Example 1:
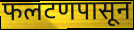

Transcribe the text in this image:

फलटणपासून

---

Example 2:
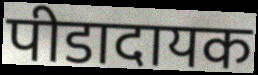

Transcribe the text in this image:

पीडादायक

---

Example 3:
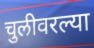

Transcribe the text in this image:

चुलीवरल्या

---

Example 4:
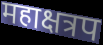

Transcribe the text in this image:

महाक्षत्रप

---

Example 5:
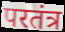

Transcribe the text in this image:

परतंत्र